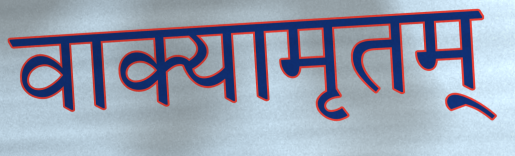
वाक्यामृतम्